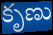
కృణు